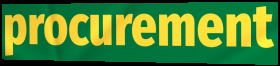
procurement